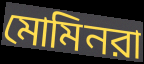
মোমিনরা